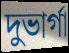
দুভার্গা